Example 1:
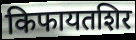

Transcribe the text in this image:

किफायतशिर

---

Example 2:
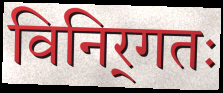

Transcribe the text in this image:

विनिर्गतः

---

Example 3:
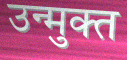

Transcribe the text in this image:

उन्मुक्त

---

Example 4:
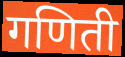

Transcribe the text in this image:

गणिती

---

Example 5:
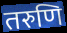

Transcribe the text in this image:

तरुणि